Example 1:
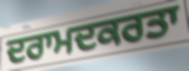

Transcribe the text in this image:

ਦਰਾਮਦਕਰਤਾ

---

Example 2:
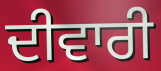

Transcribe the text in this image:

ਦੀਵਾਰੀ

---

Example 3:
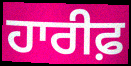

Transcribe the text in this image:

ਹਾਰੀਫ਼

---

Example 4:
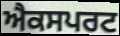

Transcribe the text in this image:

ਐਕਸਪਰਟ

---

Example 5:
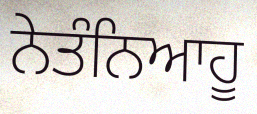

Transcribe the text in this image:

ਨੇਤੰਨਿਆਹੂ